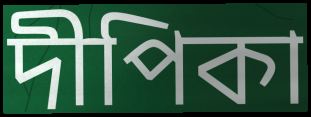
দীপিকা